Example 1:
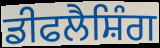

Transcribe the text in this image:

ਡੀਫਲੈਸ਼ਿੰਗ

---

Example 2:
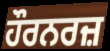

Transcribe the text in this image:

ਹੌਰਨਰਜ਼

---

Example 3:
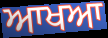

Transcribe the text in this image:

ਆਖਆ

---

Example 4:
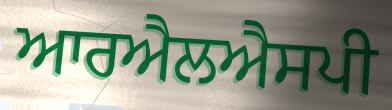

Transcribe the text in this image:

ਆਰਐਲਐਸਪੀ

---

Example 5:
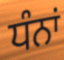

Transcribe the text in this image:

ਧੰਨਾਂ